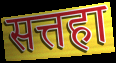
सत्तहा